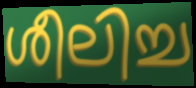
ശീലിച്ച